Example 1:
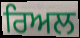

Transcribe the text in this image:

ਰਿਅਲ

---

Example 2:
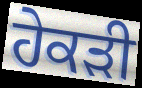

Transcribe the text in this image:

ਹੇਕੜੀ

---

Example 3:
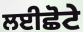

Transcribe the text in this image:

ਲਈਛੋਟੇ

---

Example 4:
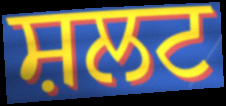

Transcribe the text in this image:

ਸ਼ਲਟ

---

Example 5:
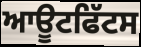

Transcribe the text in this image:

ਆਊਟਫਿੱਟਸ